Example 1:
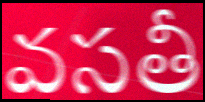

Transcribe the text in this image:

వసతీ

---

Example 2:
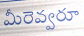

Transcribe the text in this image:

మీరెవ్వరూ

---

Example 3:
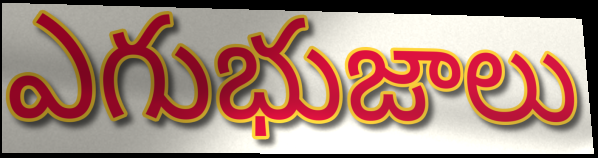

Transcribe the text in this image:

ఎగుభుజాలు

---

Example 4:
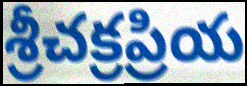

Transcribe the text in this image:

శ్రీచక్రప్రియ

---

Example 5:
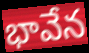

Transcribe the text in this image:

భావేన